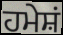
ਹਮੇਸ਼ਂ